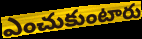
ఎంచుకుంటారు